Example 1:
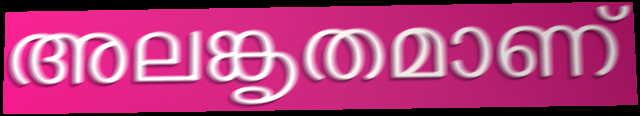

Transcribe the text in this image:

അലങ്കൃതമാണ്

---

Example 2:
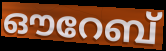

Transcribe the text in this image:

ഔറേബ്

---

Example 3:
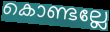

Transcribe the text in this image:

കൊണ്ടല്ലേ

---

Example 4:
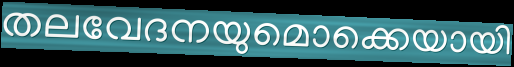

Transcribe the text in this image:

തലവേദനയുമൊക്കെയായി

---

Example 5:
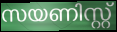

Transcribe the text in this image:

സയണിസ്റ്റ്